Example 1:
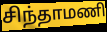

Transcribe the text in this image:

சிந்தாமணி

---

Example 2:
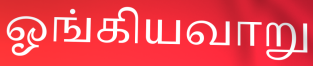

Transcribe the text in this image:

ஓங்கியவாறு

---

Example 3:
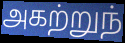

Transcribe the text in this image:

அகற்றுந்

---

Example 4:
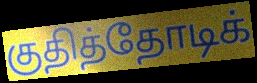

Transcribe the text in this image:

குதித்தோடிக்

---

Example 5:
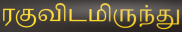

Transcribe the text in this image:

ரகுவிடமிருந்து